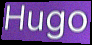
Hugo